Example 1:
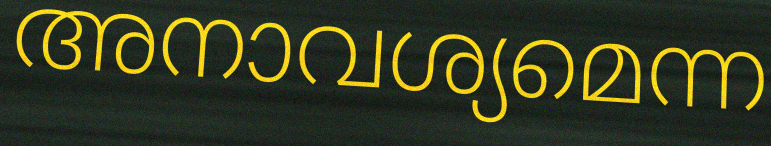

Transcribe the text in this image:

അനാവശ്യമെന്ന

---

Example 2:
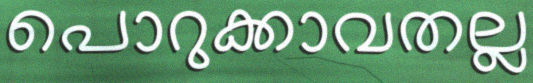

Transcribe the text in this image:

പൊറുക്കാവതല്ല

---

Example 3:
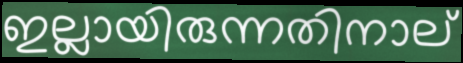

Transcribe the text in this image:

ഇല്ലായിരുന്നതിനാല്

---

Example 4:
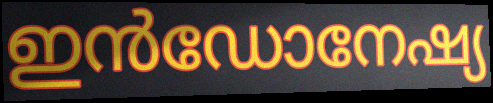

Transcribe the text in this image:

ഇൻഡോനേഷ്യ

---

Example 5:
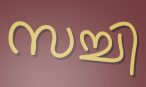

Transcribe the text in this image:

സച്ചി